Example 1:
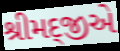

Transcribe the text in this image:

શ્રીમદ્જીએ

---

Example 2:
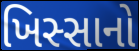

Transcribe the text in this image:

ખિસ્સાનો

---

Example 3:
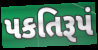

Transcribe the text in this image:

પકતિરૂપં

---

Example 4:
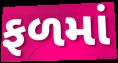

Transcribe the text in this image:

ફળમાં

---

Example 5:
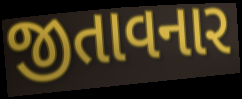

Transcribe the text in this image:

જીતાવનાર